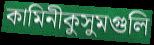
কামিনীকুসুমগুলি